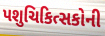
પશુચિકિત્સકોની